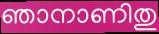
ഞാനാണിതു